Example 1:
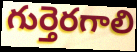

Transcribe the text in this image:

గుర్తెరగాలి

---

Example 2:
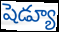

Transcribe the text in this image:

షెడ్యూ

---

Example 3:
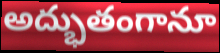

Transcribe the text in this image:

అద్భుతంగానూ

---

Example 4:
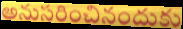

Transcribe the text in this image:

అనుసరించినందుకు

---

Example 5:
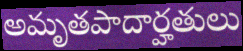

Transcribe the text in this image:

అమృతపాదార్హతులు